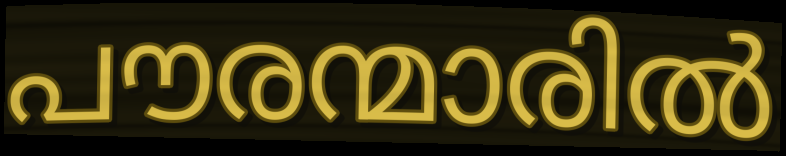
പൗരന്മാരിൽ